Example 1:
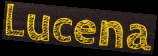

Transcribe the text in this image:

Lucena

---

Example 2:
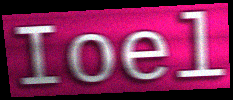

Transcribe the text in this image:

Ioel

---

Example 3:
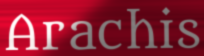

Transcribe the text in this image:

Arachis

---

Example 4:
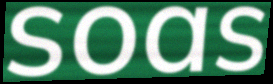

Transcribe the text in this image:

soas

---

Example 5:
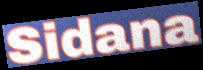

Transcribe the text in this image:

Sidana